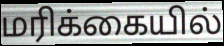
மரிக்கையில்